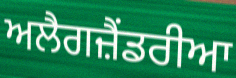
ਅਲੈਗਜ਼ੈਂਡਰੀਆ